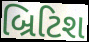
બ્રિટિશ